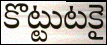
కొట్టుటకై